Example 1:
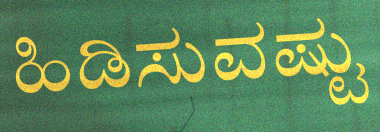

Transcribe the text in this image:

ಹಿಡಿಸುವಷ್ಟು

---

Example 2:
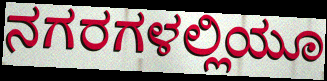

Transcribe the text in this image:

ನಗರಗಳಲ್ಲಿಯೂ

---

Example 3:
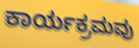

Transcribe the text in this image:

ಕಾರ್ಯಕ್ರಮವು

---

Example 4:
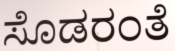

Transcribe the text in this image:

ಸೊಡರಂತೆ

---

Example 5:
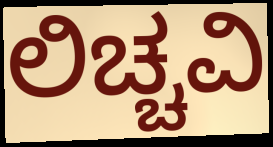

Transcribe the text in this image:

ಲಿಚ್ಚವಿ